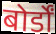
बोर्डों